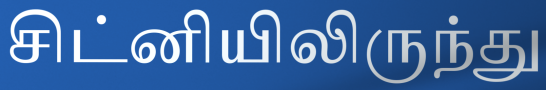
சிட்னியிலிருந்து